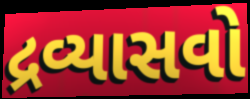
દ્રવ્યાસવો